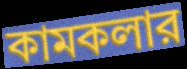
কামকলার